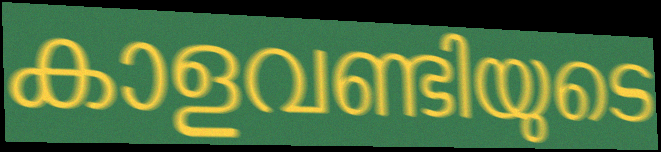
കാളവണ്ടിയുടെ